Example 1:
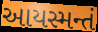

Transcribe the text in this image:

આયસ્મન્તં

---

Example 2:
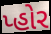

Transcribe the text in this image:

પ્હોર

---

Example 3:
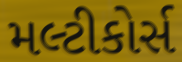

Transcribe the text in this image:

મલ્ટીકોર્સ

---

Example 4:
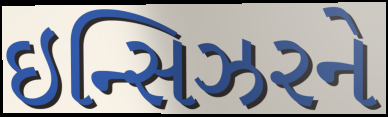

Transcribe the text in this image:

ઇન્સિઝરને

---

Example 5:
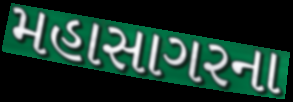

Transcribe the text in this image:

મહાસાગરના